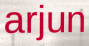
arjun